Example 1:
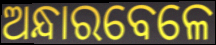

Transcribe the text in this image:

ଅନ୍ଧାରବେଳେ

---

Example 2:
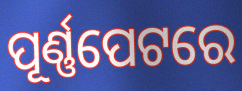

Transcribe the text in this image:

ପୂର୍ଣ୍ଣପେଟରେ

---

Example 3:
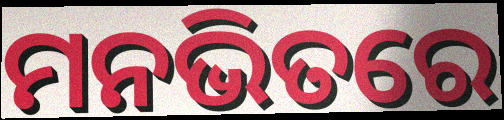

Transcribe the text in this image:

ମନଭିତରେ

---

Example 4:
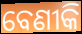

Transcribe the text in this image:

ବେଣୀକି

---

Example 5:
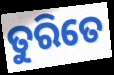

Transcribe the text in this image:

ତୁରିତେ